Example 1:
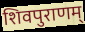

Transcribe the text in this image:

शिवपुराणम्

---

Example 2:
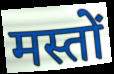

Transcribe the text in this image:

मस्तों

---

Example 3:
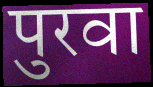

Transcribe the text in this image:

पुरवा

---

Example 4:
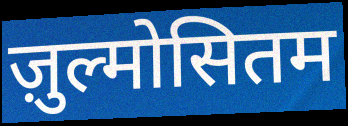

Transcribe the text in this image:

ज़ुल्मोसितम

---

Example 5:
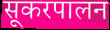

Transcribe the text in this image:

सूकरपालन